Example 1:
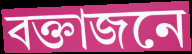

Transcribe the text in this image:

বক্তাজনে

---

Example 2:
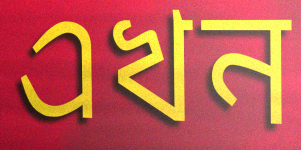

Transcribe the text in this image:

এখন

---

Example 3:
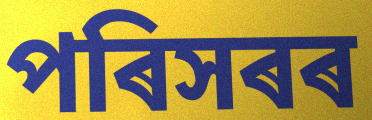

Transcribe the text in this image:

পৰিসৰৰ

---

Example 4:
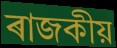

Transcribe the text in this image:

ৰাজকীয়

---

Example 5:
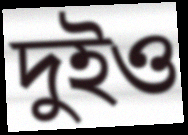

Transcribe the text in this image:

দুইও